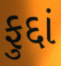
ફુદ્દાં